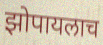
झोपायलाच